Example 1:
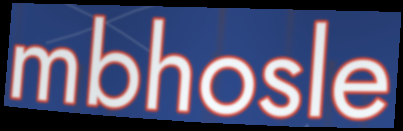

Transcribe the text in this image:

mbhosle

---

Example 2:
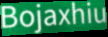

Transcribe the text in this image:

Bojaxhiu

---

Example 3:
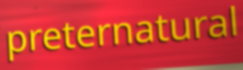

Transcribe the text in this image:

preternatural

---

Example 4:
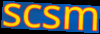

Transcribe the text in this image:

scsm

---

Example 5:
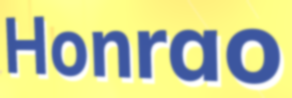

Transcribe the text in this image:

Honrao